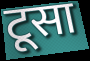
टूसा